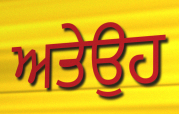
ਅਤੇਉਹ